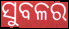
ସୁବଳର